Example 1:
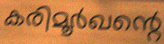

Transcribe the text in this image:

കരിമൂർഖന്റെ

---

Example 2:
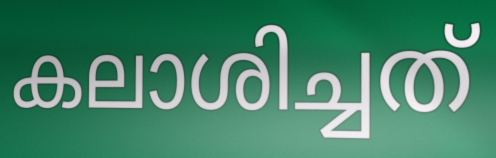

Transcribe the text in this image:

കലാശിച്ചത്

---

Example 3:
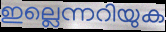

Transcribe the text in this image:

ഇല്ലെന്നറിയുക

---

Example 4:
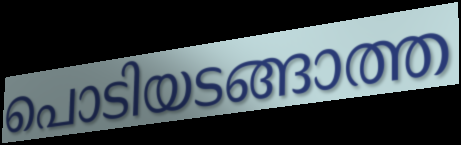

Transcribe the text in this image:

പൊടിയടങ്ങാത്ത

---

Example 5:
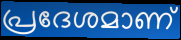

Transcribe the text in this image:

പ്രദേശമാണ്